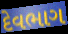
દેવભાગ